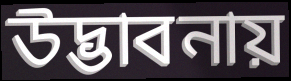
উদ্ভাবনায়